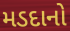
મડદાનો